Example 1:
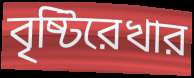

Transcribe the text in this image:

বৃষ্টিরেখার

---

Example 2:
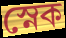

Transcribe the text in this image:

স্নেক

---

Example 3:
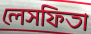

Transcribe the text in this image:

লেসফিতা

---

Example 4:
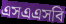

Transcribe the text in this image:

এসএএসবি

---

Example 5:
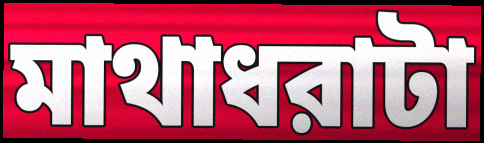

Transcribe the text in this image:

মাথাধরাটা